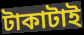
টাকাটাই